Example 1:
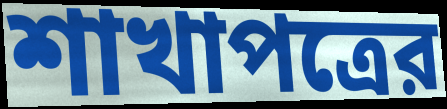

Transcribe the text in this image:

শাখাপত্রের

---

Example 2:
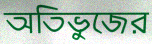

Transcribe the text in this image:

অতিভুজের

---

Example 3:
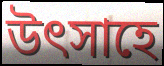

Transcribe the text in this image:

উত্‍সাহে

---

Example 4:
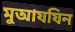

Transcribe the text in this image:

মুআযযিন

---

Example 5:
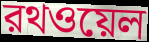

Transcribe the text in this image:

রথওয়েল